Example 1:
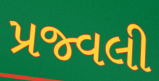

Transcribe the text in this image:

પ્રજ્વલી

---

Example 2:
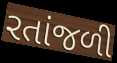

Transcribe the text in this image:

રતાંજળી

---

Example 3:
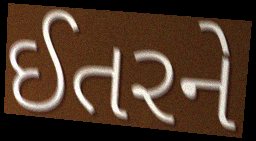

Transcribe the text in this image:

ઈતરને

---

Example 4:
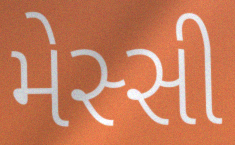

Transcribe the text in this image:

મેસ્સી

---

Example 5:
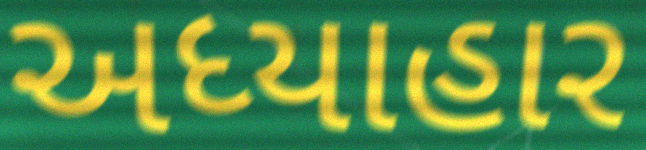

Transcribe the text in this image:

અધ્યાહાર